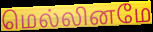
மெல்லினமே